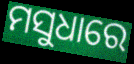
ମସୁଧାରେ